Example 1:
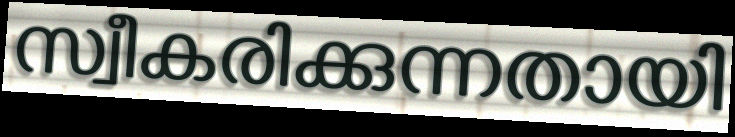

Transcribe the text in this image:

സ്വീകരിക്കുന്നതായി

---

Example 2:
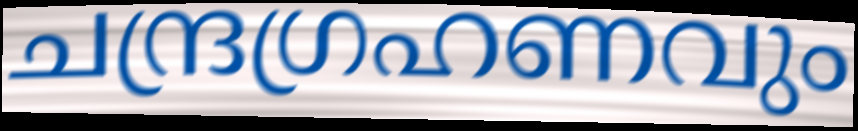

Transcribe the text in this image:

ചന്ദ്രഗ്രഹണവും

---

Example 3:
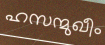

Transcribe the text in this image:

ഹസന്മുഖീം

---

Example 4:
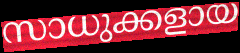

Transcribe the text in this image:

സാധുക്കളായ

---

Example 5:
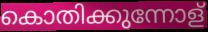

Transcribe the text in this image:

കൊതിക്കുന്നോള്